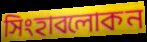
সিংহাবলোকন